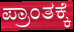
ಪ್ರಾಂತಕ್ಕೆ